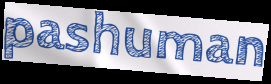
pashuman